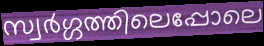
സ്വർഗ്ഗത്തിലെപ്പോലെ